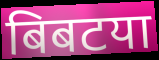
बिबटया